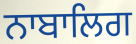
ਨਾਬਾਲਿਗ